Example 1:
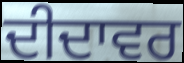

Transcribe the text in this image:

ਦੀਦਾਵਰ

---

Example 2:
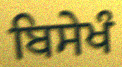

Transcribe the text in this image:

ਬਿਸੇਖੰ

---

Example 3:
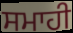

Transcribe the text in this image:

ਸਮਾਹੀ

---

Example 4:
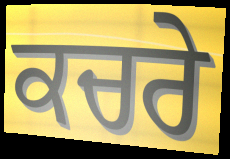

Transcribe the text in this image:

ਕਚਰੇ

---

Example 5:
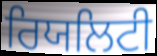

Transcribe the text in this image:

ਰਿਯਲਿਟੀ